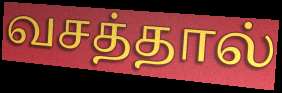
வசத்தால்